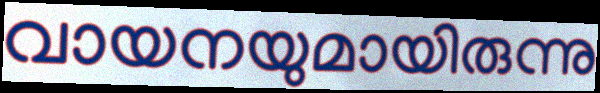
വായനയുമായിരുന്നു